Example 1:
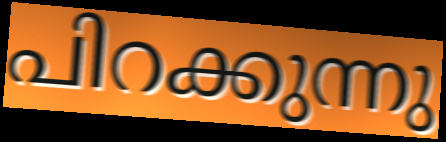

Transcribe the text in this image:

പിറക്കുന്നു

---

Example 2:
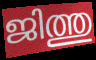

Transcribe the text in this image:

ജിത്തു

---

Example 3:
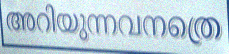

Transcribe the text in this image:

അറിയുന്നവനത്രെ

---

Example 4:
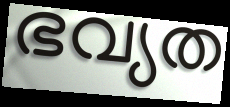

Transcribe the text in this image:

ഭവ്യത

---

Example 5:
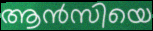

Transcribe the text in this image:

ആൻസിയെ